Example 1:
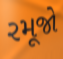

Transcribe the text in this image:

રમૂજો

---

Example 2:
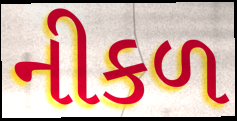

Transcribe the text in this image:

નીકળ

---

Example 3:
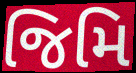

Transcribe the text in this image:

જિમિ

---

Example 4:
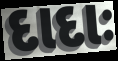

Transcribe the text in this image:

દાદાઃ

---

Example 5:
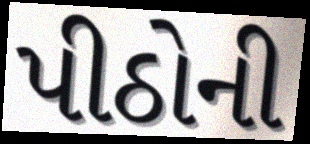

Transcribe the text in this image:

પીઠોની